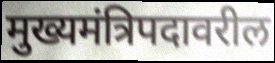
मुख्यमंत्रिपदावरील